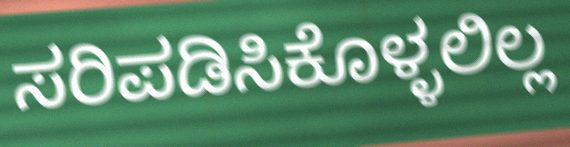
ಸರಿಪಡಿಸಿಕೊಳ್ಳಲಿಲ್ಲ